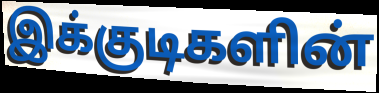
இக்குடிகளின்